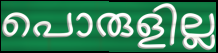
പൊരുളില്ല